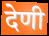
देणी